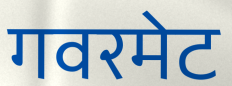
गवरमेट